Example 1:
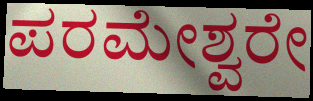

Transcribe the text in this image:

ಪರಮೇಶ್ವರೇ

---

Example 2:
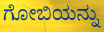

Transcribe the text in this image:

ಗೋಬಿಯನ್ನು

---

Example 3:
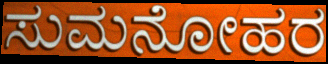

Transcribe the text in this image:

ಸುಮನೋಹರ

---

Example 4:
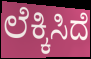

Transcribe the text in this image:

ಲೆಕ್ಕಿಸಿದೆ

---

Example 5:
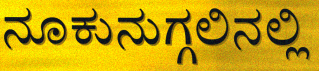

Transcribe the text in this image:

ನೂಕುನುಗ್ಗಲಿನಲ್ಲಿ